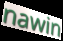
nawin